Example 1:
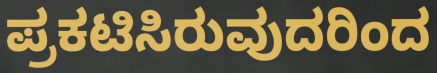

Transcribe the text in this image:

ಪ್ರಕಟಿಸಿರುವುದರಿಂದ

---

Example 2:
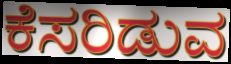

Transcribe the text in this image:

ಕೆಸರಿಡುವ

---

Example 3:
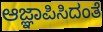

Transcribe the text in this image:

ಆಜ್ಞಾಪಿಸಿದಂತೆ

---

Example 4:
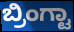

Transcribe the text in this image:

ಬ್ರಿಂಗ್ಟಾ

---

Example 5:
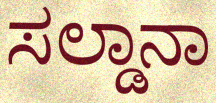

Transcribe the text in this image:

ಸಲ್ಡಾನಾ